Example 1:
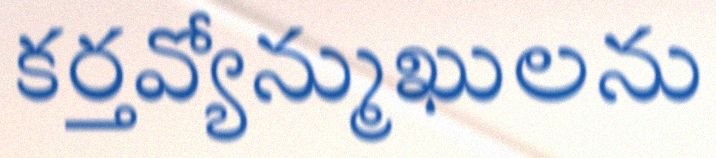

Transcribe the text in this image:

కర్తవ్యోన్ముఖులను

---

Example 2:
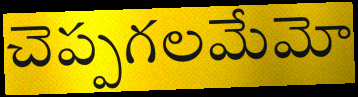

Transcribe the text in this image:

చెప్పగలమేమో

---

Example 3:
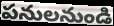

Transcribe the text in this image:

పనులనుండి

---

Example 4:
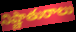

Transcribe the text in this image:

నిష్ణాతురాలు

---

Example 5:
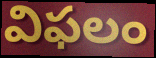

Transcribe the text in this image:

విఫలం